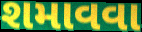
શમાવવા